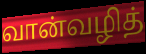
வான்வழித்